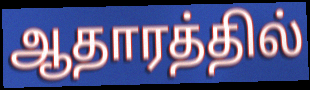
ஆதாரத்தில்